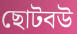
ছোটবউ